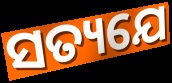
ସତ୍ୟଯେ